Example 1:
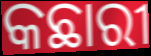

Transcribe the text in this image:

କଛାରୀ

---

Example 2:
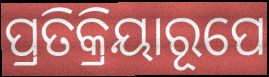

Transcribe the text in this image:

ପ୍ରତିକ୍ରିୟାରୂପେ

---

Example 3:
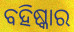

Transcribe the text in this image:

ବହିଷ୍କାର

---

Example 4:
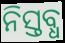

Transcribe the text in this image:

ନିସ୍ତବ୍ଧ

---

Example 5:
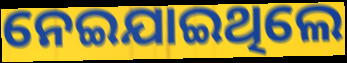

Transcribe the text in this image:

ନେଇଯାଇଥିଲେ